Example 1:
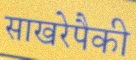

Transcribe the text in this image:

साखरेपैकी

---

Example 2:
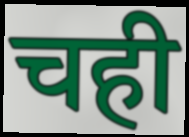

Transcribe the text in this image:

चही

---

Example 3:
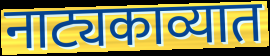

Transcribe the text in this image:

नाट्यकाव्यात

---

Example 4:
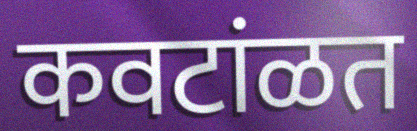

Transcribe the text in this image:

कवटांळत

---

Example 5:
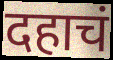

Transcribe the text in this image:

दहाचं